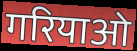
गरियाओ